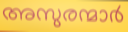
അസുരന്മാർ